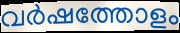
വർഷത്തോളം